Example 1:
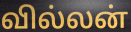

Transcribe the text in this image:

வில்லன்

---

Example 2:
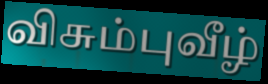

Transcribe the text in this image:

விசும்புவீழ்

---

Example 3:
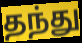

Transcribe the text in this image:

தந்து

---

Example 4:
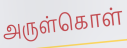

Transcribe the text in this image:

அருள்கொள்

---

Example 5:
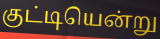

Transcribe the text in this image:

குட்டியென்று